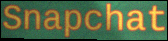
Snapchat